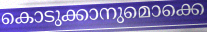
കൊടുക്കാനുമൊക്കെ